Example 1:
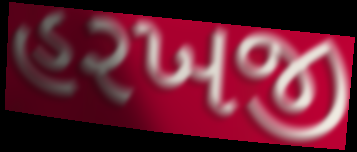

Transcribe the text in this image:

હરખજી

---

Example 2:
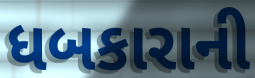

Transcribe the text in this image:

ધબકારાની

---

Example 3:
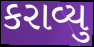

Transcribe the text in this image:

કરાવ્યુ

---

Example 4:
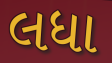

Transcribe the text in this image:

લધા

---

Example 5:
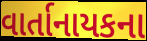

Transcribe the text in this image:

વાર્તાનાયકના